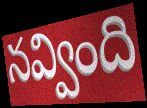
నవ్వింది